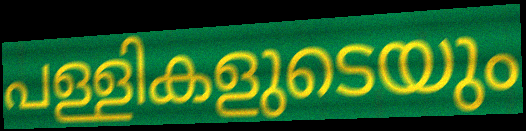
പള്ളികളുടെയും